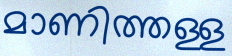
മാണിത്തള്ള